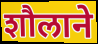
शौलाने